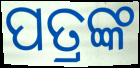
ପତ୍ରଙ୍କ